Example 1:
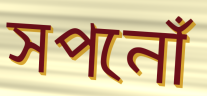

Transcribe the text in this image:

সপনোঁ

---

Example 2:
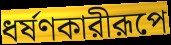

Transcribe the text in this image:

ধর্ষণকারীরূপে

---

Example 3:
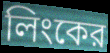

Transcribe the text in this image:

লিংকের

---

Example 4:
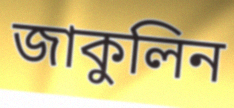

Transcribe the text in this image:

জাকুলিন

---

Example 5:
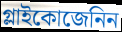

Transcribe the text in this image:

গ্লাইকোজেনিন